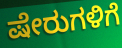
ಷೇರುಗಳಿಗೆ